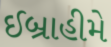
ઈબ્રાહીમે